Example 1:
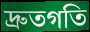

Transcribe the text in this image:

দ্রুতগতি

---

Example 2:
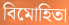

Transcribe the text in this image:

বিমোহিতা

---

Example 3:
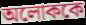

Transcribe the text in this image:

অলোককে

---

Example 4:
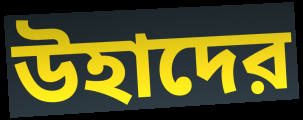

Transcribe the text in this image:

উহাদের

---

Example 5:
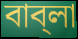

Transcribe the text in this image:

বাব্‌লা